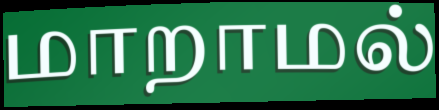
மாறாமல்